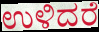
ಉಳಿದರೆ